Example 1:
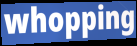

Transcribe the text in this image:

whopping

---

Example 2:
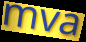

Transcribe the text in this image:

mva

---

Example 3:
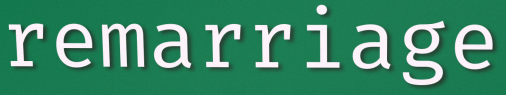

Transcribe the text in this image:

remarriage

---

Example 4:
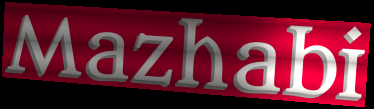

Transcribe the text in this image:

Mazhabi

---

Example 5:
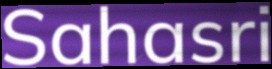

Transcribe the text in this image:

Sahasri